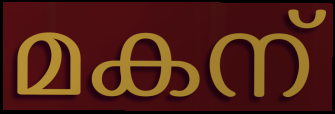
മകന്